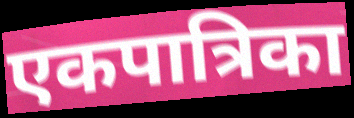
एकपात्रिका